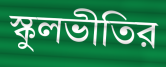
স্কুলভীতির